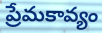
ప్రేమకావ్యం